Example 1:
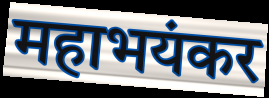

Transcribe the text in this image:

महाभयंकर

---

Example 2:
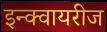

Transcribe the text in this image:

इन्क्वायरीज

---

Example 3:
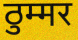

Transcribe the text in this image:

ठुम्मर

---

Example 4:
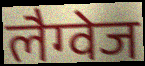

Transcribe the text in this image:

लैग्वेज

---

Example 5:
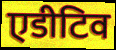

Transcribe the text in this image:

एडीटिव